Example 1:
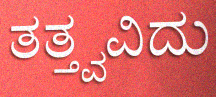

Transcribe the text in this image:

ತತ್ತ್ವವಿದು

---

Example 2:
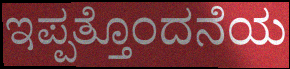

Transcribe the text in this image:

ಇಪ್ಪತ್ತೊಂದನೆಯ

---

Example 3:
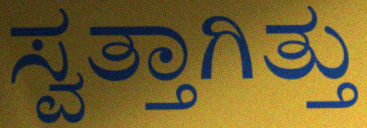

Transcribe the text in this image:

ಸ್ವತ್ತಾಗಿತ್ತು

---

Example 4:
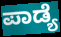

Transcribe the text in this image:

ಪಾಡ್ಯೆ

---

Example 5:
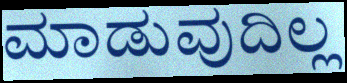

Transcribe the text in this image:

ಮಾಡುವುದಿಲ್ಲ